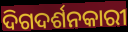
ଦିଗଦର୍ଶନକାରୀ